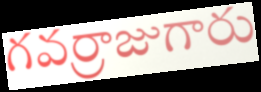
గవర్రాజుగారు